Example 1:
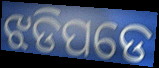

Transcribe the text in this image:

ଝଡିପଡେ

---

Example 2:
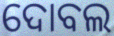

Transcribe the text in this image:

ଦୋବଲ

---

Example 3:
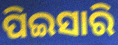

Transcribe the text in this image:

ପିଇସାରି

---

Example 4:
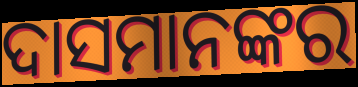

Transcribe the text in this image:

ଦାସମାନଙ୍କର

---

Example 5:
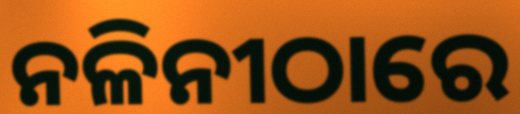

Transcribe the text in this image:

ନଳିନୀଠାରେ